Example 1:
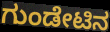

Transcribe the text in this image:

ಗುಂಡೇಟಿನ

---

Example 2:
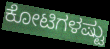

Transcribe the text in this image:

ಕೋಟಿಗಳಷ್ಟು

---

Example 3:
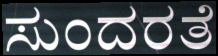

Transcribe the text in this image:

ಸುಂದರತೆ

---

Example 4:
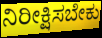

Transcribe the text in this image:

ನಿರೀಕ್ಷಿಸಬೇಕು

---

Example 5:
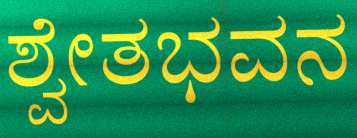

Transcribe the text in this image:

ಶ್ವೇತಭವನ